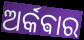
ଅର୍କଵାର